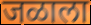
जळाला